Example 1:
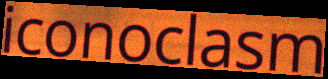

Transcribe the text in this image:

iconoclasm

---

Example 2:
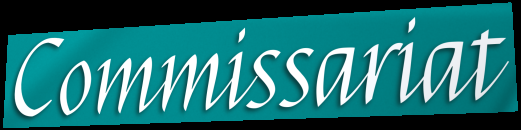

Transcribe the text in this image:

Commissariat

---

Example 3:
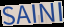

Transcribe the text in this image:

SAINI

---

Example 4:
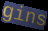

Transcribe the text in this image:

gins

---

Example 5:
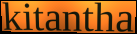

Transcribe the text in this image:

kitantha